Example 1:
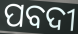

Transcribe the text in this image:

ପବଦୀ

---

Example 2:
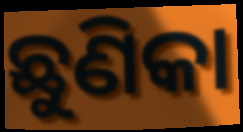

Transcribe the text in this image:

ଛୁଣିକା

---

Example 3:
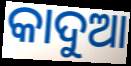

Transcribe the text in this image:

କାଦୁଆ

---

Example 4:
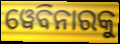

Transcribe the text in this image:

ୱେବିନାରକୁ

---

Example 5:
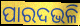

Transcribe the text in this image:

ପାରଦଭଳି